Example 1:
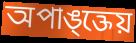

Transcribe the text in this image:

অপাঙ্‌ক্তেয়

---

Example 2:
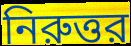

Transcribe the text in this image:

নিরুত্তর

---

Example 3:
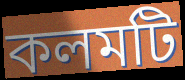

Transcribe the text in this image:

কলমটি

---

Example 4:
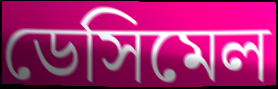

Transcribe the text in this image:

ডেসিমেল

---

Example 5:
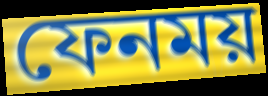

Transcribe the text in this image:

ফেনময়